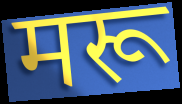
मरू